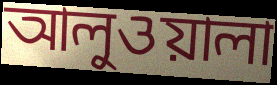
আলুওয়ালা